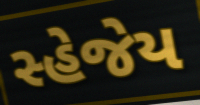
સ્હેજેય